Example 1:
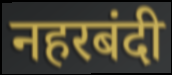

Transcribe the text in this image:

नहरबंदी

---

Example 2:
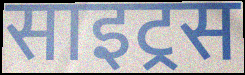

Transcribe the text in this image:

साइट्रस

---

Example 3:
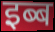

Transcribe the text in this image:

इब्ब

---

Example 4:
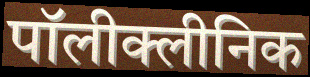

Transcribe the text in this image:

पॉलीक्लीनिक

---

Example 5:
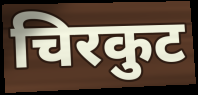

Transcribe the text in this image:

चिरकुट